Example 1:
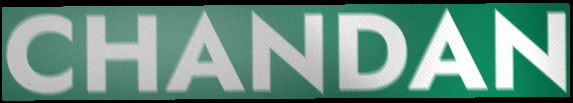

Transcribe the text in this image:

CHANDAN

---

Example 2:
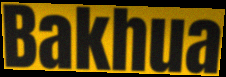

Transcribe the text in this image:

Bakhua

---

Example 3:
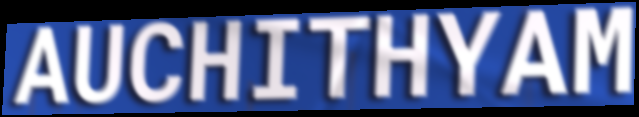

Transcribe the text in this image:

AUCHITHYAM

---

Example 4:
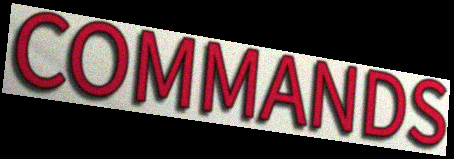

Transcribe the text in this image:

COMMANDS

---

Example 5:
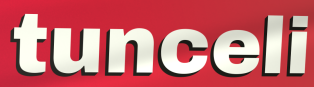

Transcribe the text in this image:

tunceli